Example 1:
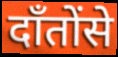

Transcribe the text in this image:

दाँतोंसे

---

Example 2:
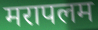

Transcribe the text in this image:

मरापलम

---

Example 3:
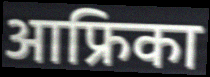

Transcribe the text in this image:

आफ्रिका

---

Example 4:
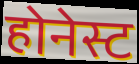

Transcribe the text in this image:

होनेस्ट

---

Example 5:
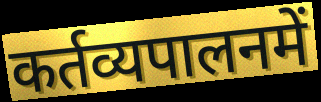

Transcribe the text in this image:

कर्तव्यपालनमें